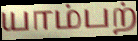
யாம்பற்